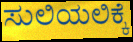
ಸುಲಿಯಲಿಕ್ಕೆ